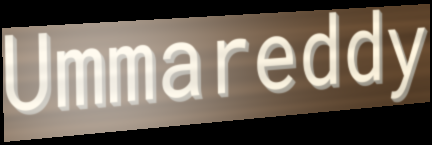
Ummareddy